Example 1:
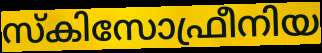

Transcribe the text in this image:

സ്കിസോഫ്രീനിയ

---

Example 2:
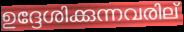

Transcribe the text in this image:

ഉദ്ദേശിക്കുന്നവരില്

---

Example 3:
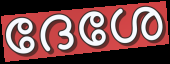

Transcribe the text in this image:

ദേശേ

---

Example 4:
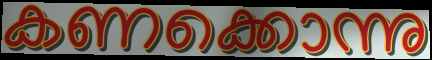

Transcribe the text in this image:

കണക്കൊന്നു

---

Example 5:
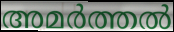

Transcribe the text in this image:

അമർത്തൽ